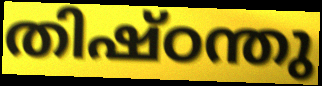
തിഷ്ഠന്തു